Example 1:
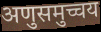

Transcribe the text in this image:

अणुसमुच्चय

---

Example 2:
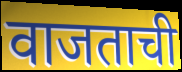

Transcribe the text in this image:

वाजताची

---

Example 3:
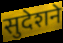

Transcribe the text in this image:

सुदेशने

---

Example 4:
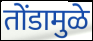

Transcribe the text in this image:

तोंडामुळे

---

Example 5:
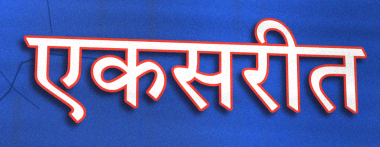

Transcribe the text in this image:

एकसरीत